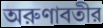
অরুণাবতীর